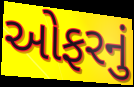
ઓફરનું